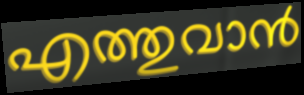
എത്തുവാൻ